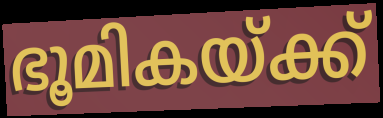
ഭൂമികയ്ക്ക്